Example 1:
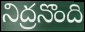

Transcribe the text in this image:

నిద్రనొంది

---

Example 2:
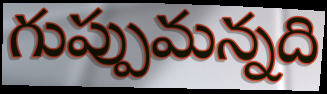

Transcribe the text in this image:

గుప్పుమన్నది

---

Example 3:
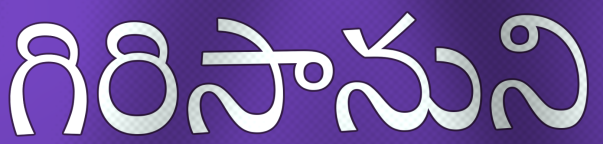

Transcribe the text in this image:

గిరిసానుని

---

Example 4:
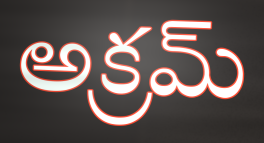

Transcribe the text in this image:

అక్రమ్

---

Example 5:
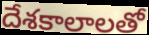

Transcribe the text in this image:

దేశకాలాలతో